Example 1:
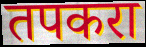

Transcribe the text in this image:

तपकरा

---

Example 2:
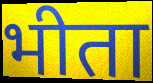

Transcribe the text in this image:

भीता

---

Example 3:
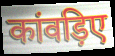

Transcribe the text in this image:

कांवड़िए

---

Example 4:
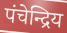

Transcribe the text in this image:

पंचेन्द्रिय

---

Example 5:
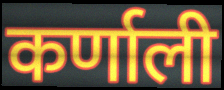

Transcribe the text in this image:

कर्णाली